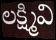
లక్ష్మివి